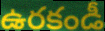
ఉరకండీ